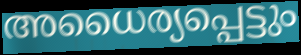
അധൈര്യപ്പെട്ടും